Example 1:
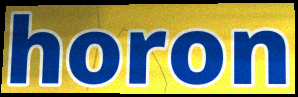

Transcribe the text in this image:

horon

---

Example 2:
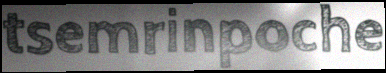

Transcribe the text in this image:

tsemrinpoche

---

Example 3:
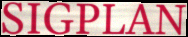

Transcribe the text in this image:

SIGPLAN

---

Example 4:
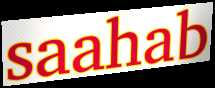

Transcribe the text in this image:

saahab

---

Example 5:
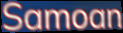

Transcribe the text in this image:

Samoan